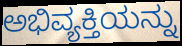
ಅಭಿವ್ಯಕ್ತಿಯನ್ನು